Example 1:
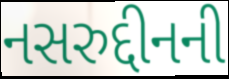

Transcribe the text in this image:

નસરુદ્દીનની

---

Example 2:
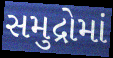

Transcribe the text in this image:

સમુદ્રોમાં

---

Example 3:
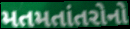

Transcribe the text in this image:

મતમતાંતરોનો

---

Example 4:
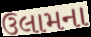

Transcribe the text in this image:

ઉલામના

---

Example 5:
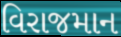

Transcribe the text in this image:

વિરાજમાન